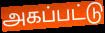
அகப்பட்டு